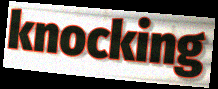
knocking